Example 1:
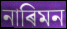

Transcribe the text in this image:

নাৰিমন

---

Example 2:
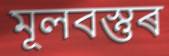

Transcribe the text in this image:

মূলবস্তুৰ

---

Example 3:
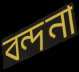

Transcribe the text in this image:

বন্দনা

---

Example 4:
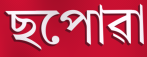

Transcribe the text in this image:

ছপোৱা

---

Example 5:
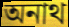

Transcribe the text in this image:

অনাথ